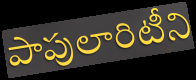
పాపులారిటీని